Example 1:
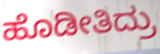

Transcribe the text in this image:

ಹೊಡೀತಿದ್ರು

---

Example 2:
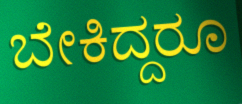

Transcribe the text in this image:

ಬೇಕಿದ್ದರೂ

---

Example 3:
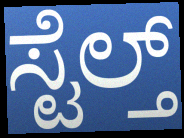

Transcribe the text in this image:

ಸ್ಟೆಲ್ತ್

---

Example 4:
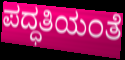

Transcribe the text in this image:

ಪದ್ಧತಿಯಂತೆ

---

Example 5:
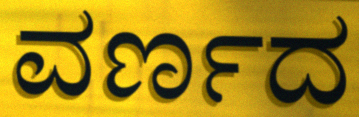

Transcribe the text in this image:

ವರ್ಣದ